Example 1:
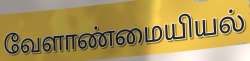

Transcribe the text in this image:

வேளாண்மையியல்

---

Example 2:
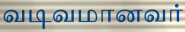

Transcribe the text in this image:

வடிவமானவர்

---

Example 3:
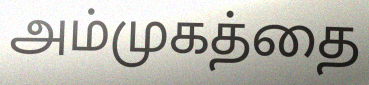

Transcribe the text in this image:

அம்முகத்தை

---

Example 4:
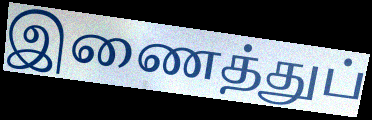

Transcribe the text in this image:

இணைத்துப்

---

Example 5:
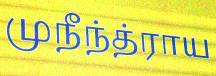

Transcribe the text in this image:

முநீந்த்ராய